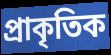
প্ৰাকৃতিক